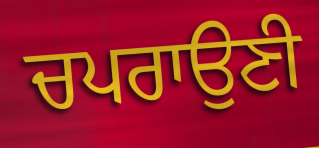
ਚਪਰਾਉਣੀ